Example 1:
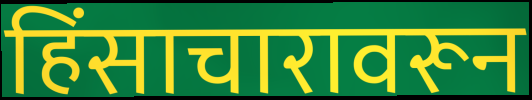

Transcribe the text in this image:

हिंसाचारावरून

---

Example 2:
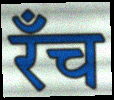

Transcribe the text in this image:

रँच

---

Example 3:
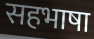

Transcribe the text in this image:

सहभाषा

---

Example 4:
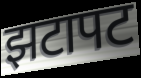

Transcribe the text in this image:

झटापट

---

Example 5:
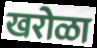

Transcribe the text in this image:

खरोळा